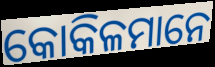
କୋକିଳମାନେ